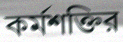
কর্মশক্তির